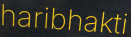
haribhakti